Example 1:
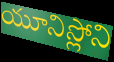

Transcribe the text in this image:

యూనిస్లోని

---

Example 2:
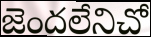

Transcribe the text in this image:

జెందలేనిచో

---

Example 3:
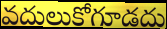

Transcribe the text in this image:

వదులుకోగూడదు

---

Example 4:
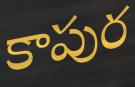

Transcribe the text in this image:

కాపుర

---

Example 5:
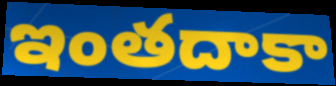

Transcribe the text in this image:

ఇంతదాకా